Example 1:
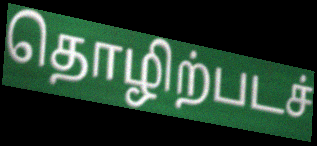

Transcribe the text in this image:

தொழிற்படச்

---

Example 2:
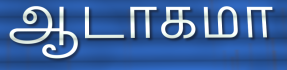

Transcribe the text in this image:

ஆடாகமா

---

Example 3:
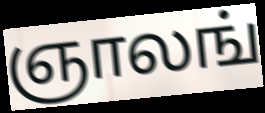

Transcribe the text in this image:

ஞாலங்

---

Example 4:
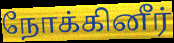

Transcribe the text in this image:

நோக்கினீர்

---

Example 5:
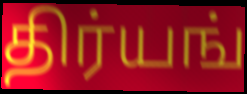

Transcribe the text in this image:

திர்யங்